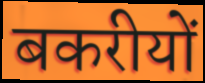
बकरीयों